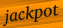
jackpot